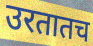
उरतातच